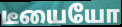
டீயையோ